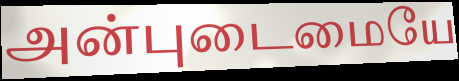
அன்புடைமையே